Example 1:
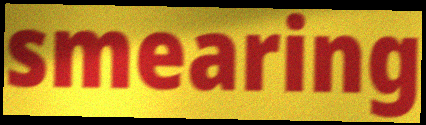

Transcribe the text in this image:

smearing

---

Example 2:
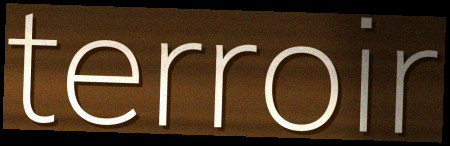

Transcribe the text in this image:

terroir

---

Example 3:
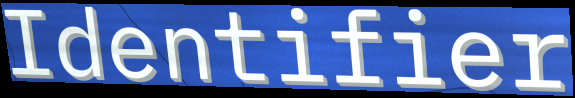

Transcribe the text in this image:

Identifier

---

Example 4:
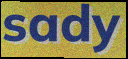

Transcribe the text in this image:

sady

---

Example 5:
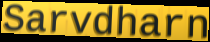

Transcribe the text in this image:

Sarvdharn